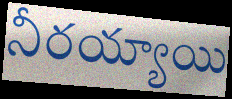
నీరయ్యాయి